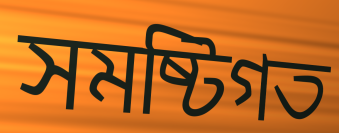
সমষ্টিগত